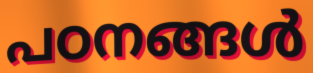
പഠനങ്ങൾ